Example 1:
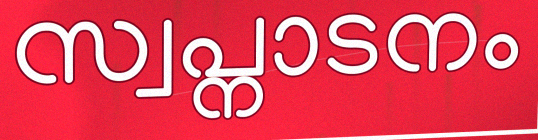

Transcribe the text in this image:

സ്വപ്നാടനം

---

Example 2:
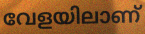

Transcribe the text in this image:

വേളയിലാണ്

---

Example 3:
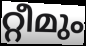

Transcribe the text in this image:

റ്റീമും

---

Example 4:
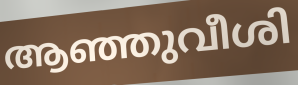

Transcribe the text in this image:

ആഞ്ഞുവീശി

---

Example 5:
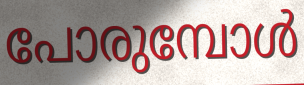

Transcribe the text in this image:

പോരുമ്പോൾ